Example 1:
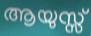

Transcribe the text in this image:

ആയുസ്സ്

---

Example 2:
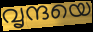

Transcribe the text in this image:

വൃന്ദയെ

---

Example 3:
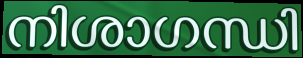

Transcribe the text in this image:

നിശാഗന്ധി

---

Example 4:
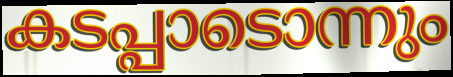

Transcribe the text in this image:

കടപ്പാടൊന്നും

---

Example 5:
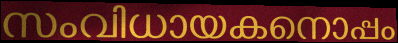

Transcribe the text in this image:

സംവിധായകനൊപ്പം